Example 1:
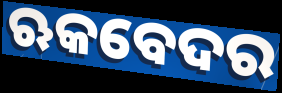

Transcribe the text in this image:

ଋକବେଦର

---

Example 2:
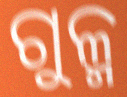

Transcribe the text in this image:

ଗୁଳ୍ମ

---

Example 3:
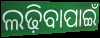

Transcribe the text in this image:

ଲଢ଼ିବାପାଇଁ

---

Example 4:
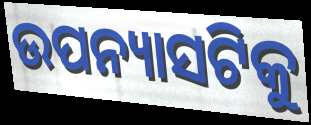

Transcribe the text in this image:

ଉପନ୍ୟାସଟିକୁ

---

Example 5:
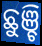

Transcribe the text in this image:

ଛୁଞ୍ଚି